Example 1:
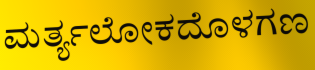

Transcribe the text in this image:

ಮರ್ತ್ಯಲೋಕದೊಳಗಣ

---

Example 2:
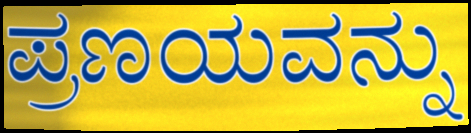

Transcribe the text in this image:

ಪ್ರಣಯವನ್ನು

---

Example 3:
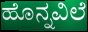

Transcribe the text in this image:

ಹೊನ್ನವಿಲೆ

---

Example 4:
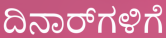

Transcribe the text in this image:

ದಿನಾರ್‌ಗಳಿಗೆ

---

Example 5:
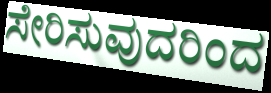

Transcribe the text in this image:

ಸೇರಿಸುವುದರಿಂದ